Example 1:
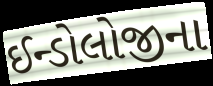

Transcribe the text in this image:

ઈન્ડોલોજીના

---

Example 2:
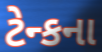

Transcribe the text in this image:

ટેન્કના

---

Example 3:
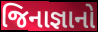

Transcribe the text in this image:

જિનાજ્ઞાનો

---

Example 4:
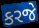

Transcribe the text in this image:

કરજે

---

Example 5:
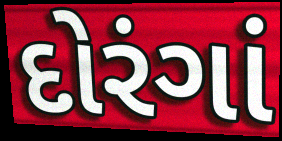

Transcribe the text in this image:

દોરંગાં